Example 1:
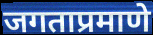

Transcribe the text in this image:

जगताप्रमाणे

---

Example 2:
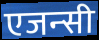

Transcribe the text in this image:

एजन्सी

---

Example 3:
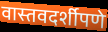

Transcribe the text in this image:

वास्तवदर्शीपणे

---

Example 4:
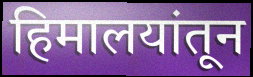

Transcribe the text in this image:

हिमालयांतून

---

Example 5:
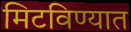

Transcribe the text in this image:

मिटविण्यात